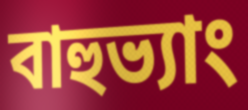
বাহুভ্যাং